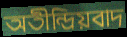
অতীন্দ্রিয়বাদ